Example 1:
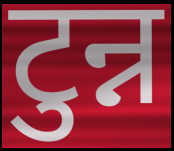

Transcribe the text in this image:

टुन्न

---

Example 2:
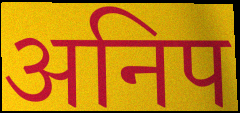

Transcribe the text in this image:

अनिप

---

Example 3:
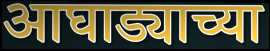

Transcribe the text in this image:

आघाड्याच्या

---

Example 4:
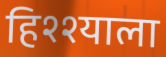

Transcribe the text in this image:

हिश्श्याला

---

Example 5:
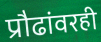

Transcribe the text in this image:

प्रौढांवरही